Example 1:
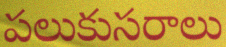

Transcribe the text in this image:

పలుకుసరాలు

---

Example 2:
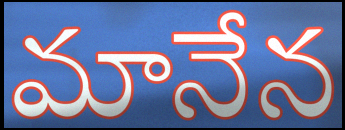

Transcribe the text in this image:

మానేన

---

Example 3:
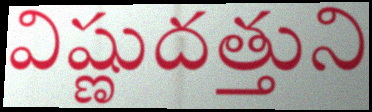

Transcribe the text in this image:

విష్ణుదత్తుని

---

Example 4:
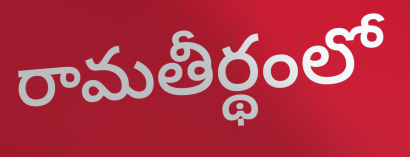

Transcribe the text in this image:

రామతీర్థంలో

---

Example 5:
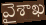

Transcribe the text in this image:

వైశాఖ